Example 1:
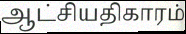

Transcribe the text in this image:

ஆட்சியதிகாரம்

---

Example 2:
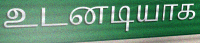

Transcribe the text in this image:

உடனடியாக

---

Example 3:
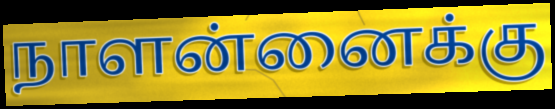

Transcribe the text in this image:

நாளன்னைக்கு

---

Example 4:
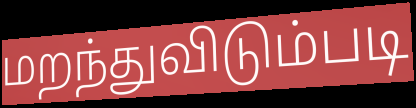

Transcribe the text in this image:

மறந்துவிடும்படி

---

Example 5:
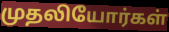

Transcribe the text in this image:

முதலியோர்கள்